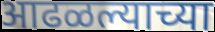
आढळल्याच्या